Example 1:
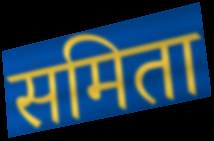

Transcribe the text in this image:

समिता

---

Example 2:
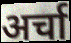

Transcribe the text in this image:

अर्चा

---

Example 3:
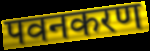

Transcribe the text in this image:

पवनकरण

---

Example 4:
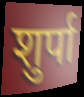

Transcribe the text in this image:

शुर्पा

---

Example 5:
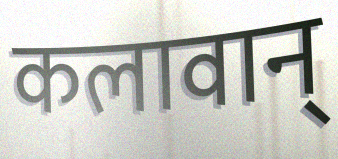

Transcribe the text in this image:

कलावान्